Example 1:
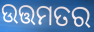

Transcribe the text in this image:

ଉତ୍ତମତର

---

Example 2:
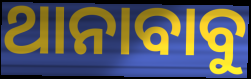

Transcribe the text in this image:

ଥାନାବାବୁ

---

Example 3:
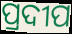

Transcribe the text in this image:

ପ୍ରଦୀପ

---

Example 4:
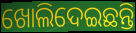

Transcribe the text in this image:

ଖୋଲିଦେଇଛନ୍ତି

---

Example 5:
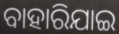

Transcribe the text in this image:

ବାହାରିଯାଇ